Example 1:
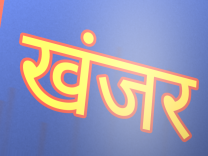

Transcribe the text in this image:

खंजर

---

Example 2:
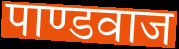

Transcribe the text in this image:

पाण्डवाज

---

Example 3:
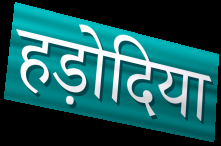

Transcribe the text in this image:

हड़ोदिया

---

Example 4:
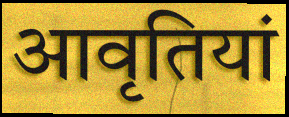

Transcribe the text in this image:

आवृतियां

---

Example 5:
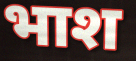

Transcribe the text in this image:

भाश